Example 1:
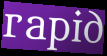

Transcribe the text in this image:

rapid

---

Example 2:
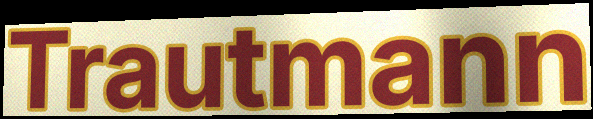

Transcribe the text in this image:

Trautmann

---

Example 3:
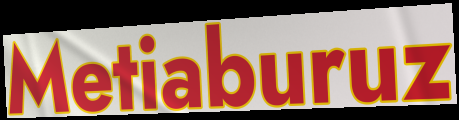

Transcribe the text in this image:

Metiaburuz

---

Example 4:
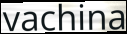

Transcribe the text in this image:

vachina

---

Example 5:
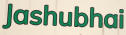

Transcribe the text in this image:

Jashubhai